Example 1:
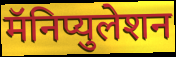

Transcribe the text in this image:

मॅनिप्युलेशन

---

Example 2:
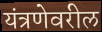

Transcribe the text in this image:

यंत्रणेवरील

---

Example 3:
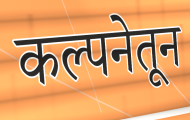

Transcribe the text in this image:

कल्पनेतून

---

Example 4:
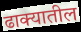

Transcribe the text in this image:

ढाक्यातील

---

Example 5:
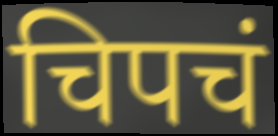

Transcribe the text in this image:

चिपचं